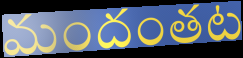
మందంతట